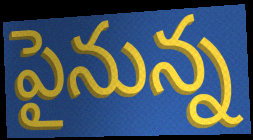
పైనున్న